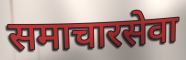
समाचारसेवा